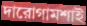
দারোগামশাই